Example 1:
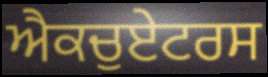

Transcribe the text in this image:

ਐਕਚੁਏਟਰਸ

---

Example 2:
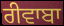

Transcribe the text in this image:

ਰੀਵਾਬਾ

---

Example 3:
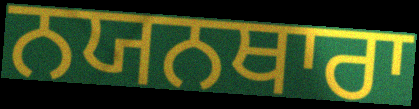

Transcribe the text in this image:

ਨਯਨਥਾਰਾ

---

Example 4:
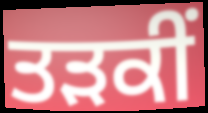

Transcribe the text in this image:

ਤੜਕੀਂ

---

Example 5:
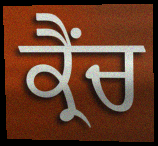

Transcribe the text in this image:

ਕ੍ਰੈਂਚ